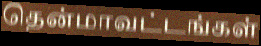
தென்மாவட்டங்கள்